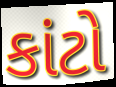
કાંટો